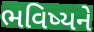
ભવિષ્યને